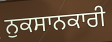
ਨੁਕਸਾਨਕਾਰੀ